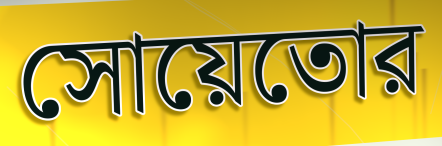
সোয়েতোর